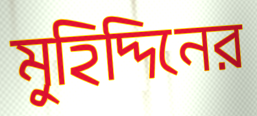
মুহিদ্দিনের